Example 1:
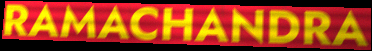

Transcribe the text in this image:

RAMACHANDRA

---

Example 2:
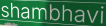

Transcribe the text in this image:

shambhavi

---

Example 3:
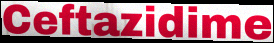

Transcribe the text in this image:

Ceftazidime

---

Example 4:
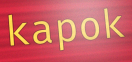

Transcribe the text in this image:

kapok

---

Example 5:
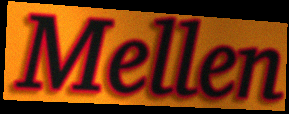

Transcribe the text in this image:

Mellen